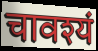
चावश्यं